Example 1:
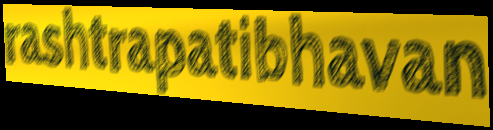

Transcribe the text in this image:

rashtrapatibhavan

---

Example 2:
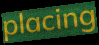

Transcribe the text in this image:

placing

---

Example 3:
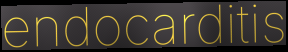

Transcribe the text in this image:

endocarditis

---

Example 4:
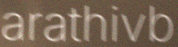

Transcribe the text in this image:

arathivb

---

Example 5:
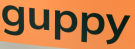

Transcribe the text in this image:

guppy